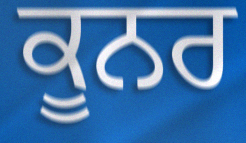
ਕੂਨਰ